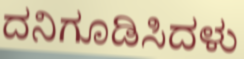
ದನಿಗೂಡಿಸಿದಳು